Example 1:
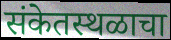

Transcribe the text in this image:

संकेतस्थळाचा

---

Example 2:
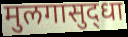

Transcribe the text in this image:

मुलगासुद्धा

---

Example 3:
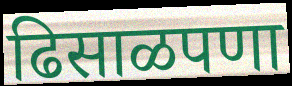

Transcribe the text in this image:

ढिसाळपणा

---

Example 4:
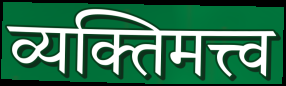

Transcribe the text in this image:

व्यक्तिमत्त्व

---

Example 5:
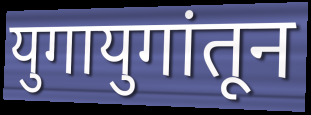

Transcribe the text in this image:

युगायुगांतून